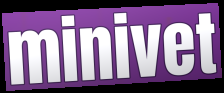
minivet